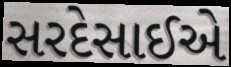
સરદેસાઈએ